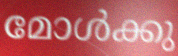
മോൾക്കു